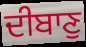
ਦੀਬਾਣੁ